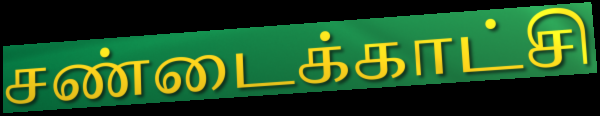
சண்டைக்காட்சி